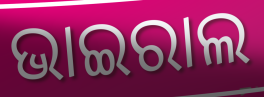
ଭାଇରାଲ